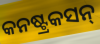
କନଷ୍ଟ୍ରକସନ୍